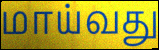
மாய்வது